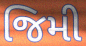
જિમી